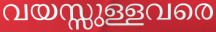
വയസ്സുള്ളവരെ